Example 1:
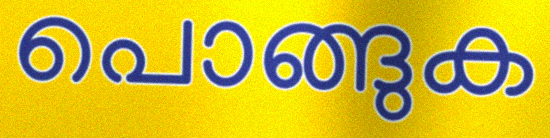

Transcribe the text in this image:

പൊങ്ങുക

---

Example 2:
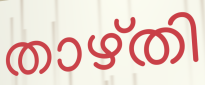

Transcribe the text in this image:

താഴ്തി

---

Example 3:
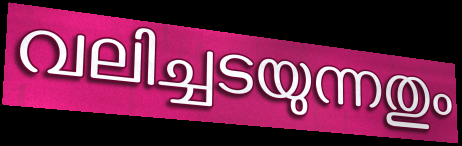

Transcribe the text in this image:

വലിച്ചടയുന്നതും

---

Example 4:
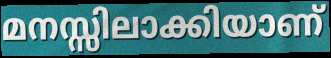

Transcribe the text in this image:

മനസ്സിലാക്കിയാണ്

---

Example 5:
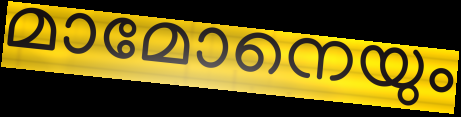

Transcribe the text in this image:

മാമോനെയും